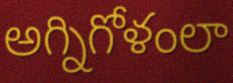
అగ్నిగోళంలా